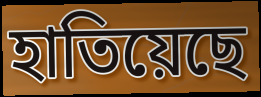
হাতিয়েছে